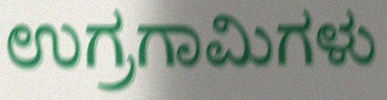
ಉಗ್ರಗಾಮಿಗಳು